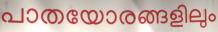
പാതയോരങ്ങളിലും